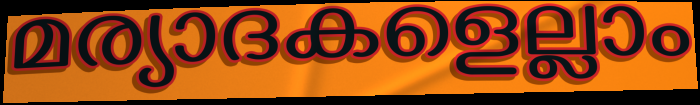
മര്യാദകളെല്ലാം